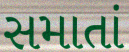
સમાતાં